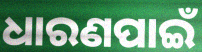
ଧାରଣପାଇଁ